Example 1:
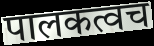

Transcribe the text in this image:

पालकत्वच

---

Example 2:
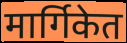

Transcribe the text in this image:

मार्गिकेत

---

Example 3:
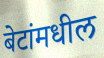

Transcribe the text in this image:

बेटांमधील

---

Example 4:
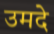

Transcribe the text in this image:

उमदे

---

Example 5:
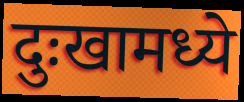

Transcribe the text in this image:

दुःखामध्ये